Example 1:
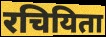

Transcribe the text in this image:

रचियिता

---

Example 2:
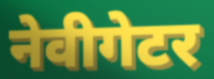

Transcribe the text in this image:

नेवीगेटर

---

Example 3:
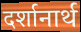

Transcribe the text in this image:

दर्शानार्थ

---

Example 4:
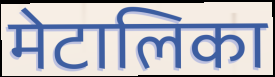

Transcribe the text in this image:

मेटालिका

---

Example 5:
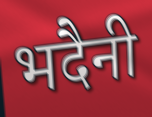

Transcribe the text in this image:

भदैनी